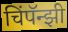
चिंपॅन्झी